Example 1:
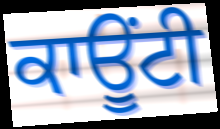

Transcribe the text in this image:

ਕਾਊਂਟੀ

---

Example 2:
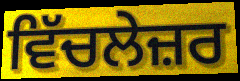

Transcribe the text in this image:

ਵਿੱਚਲੇਜ਼ਰ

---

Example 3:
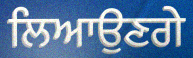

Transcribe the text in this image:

ਲਿਆਉਣਗੇ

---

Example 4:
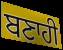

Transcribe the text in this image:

ਬਣਾਹੀ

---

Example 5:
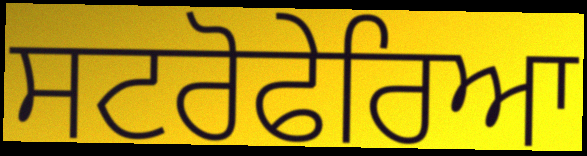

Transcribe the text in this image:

ਸਟਰੋਫੇਰਿਆ